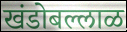
खंडोबल्लाळ